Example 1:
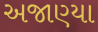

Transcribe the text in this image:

અજાણ્યા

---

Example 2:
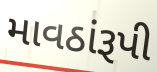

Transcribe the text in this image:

માવઠાંરૂપી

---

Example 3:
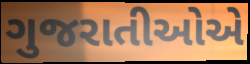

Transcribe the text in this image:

ગુજરાતીઓએ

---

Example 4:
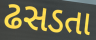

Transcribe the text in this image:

ઢસડતા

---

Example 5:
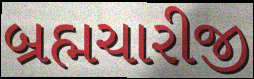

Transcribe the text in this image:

બ્રહ્મચારીજી